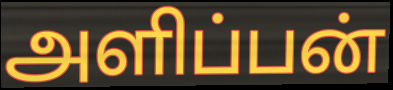
அளிப்பன்